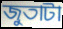
জুতাটা